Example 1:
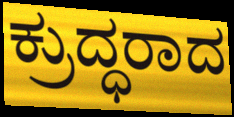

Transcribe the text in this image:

ಕ್ರುದ್ಧರಾದ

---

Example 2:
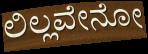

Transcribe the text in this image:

ಲಿಲ್ಲವೇನೋ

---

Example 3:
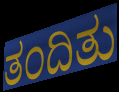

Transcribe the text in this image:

ತಂದಿತು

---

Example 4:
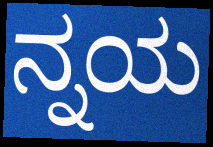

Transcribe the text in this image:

ನ್ನಯ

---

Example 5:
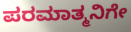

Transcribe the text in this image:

ಪರಮಾತ್ಮನಿಗೇ